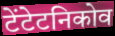
टेंटेटनिकोव